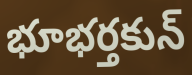
భూభర్తకున్